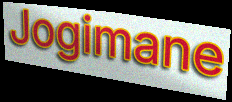
Jogimane